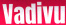
Vadivu